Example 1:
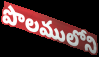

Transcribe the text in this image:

పొలములోని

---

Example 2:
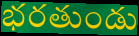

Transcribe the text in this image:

భరతుండు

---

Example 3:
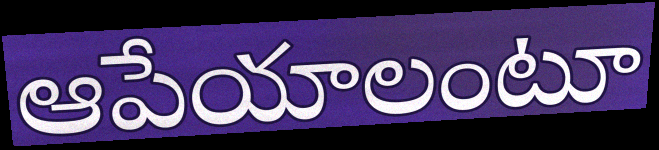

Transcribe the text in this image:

ఆపేయాలంటూ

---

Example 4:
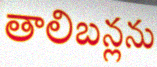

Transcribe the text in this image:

తాలిబన్లను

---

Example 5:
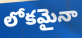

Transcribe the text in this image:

లోకమైనా